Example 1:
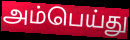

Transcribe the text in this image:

அம்பெய்து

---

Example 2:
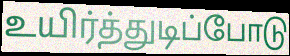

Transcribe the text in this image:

உயிர்த்துடிப்போடு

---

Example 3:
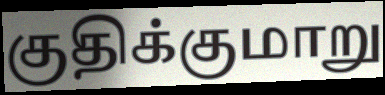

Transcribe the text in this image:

குதிக்குமாறு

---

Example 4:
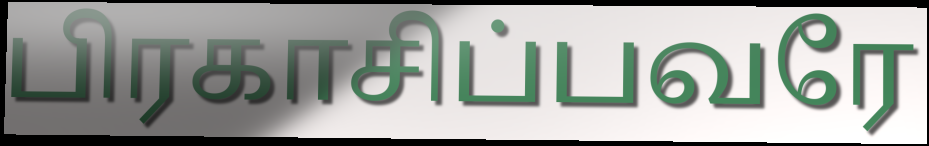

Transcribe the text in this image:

பிரகாசிப்பவரே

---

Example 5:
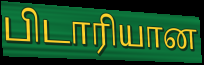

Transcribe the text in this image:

பிடாரியான